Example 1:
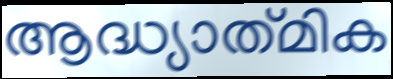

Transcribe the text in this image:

ആദ്ധ്യാത്‌മിക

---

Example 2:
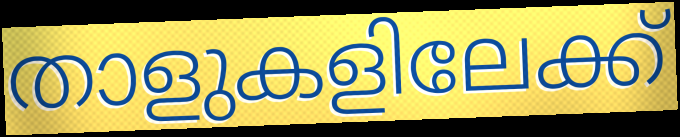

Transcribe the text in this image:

താളുകളിലേക്ക്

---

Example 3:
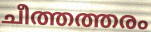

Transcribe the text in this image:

ചീത്തത്തരം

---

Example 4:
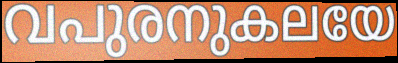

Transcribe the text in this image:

വപുരനുകലയേ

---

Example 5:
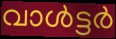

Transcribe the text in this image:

വാൾട്ടർ